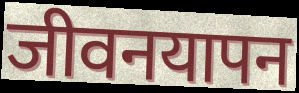
जीवनयापन